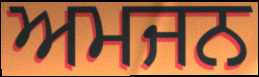
ਅਮਜਨ